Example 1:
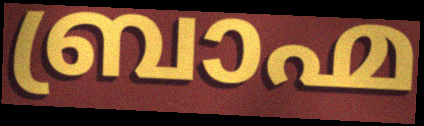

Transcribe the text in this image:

ബ്രാഹ്മ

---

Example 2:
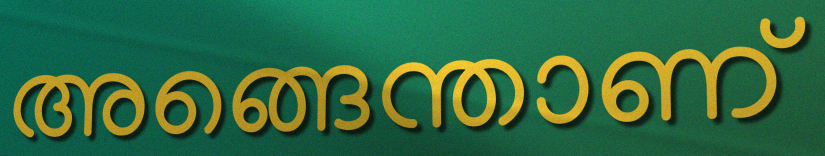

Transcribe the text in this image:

അങ്ങെന്താണ്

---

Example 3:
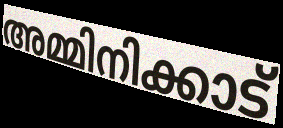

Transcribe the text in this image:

അമ്മിനിക്കാട്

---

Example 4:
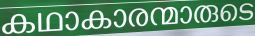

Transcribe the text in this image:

കഥാകാരന്മാരുടെ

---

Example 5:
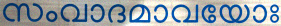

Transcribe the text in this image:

സംവാദമാവയോഃ